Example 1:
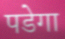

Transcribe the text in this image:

पडेगा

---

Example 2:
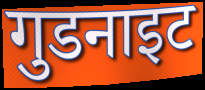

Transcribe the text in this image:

गुडनाइट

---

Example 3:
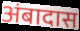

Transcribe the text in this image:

अंबादास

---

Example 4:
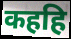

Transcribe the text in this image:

कहहि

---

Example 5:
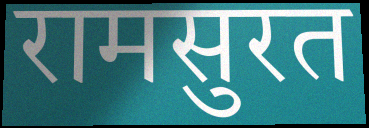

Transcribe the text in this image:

रामसुरत